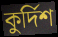
কুর্দিশ